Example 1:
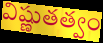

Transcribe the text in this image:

విష్ణుతత్వం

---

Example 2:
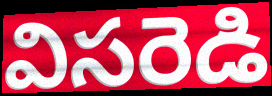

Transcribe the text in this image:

విసరెడి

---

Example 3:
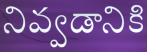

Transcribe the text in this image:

నివ్వడానికి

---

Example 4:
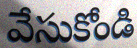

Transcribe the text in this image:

వేసుకోండి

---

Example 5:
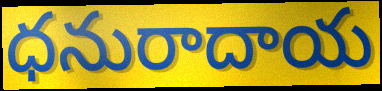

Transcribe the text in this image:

ధనురాదాయ